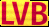
LVB